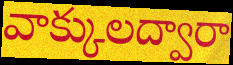
వాక్కులద్వారా